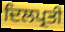
ਦਿਲਪ੍ਰਤੀ